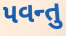
પવન્તુ